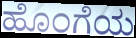
ಹೊಂಗೆಯ